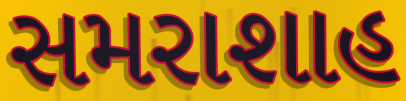
સમરાશાહ